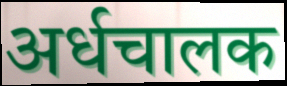
अर्धचालक